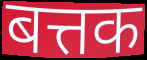
बत्तक